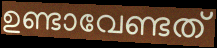
ഉണ്ടാവേണ്ടത്